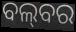
ବଲ୍‌ବର